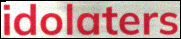
idolaters